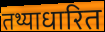
तथ्याधारित